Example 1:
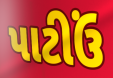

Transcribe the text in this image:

પાટીઉં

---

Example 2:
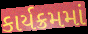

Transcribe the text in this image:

કાર્યક્રમમાં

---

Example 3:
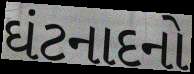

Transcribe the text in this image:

ઘંટનાદનો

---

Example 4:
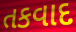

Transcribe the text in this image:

તકવાદ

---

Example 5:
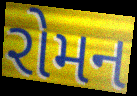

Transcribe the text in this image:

રોમન